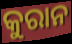
କୁରାନ